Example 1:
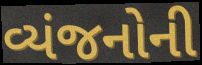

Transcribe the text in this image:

વ્યંજનોની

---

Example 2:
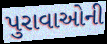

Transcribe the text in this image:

પુરાવાઓની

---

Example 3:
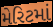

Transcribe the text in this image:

મેરિટમાં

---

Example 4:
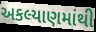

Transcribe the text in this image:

અકલ્યાણમાંથી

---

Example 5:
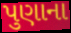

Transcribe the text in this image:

પુણાના